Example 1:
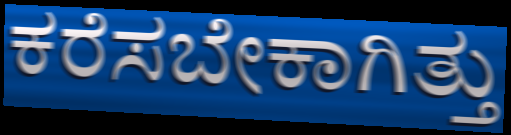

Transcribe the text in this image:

ಕರೆಸಬೇಕಾಗಿತ್ತು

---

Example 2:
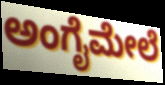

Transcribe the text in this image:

ಅಂಗೈಮೇಲೆ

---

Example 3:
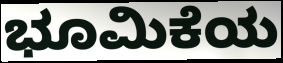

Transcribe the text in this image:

ಭೂಮಿಕೆಯ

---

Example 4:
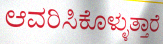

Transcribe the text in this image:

ಆವರಿಸಿಕೊಳ್ಳುತ್ತಾರೆ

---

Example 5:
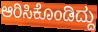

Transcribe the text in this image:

ಆರಿಸಿಕೊಂಡಿದ್ದು